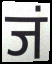
जं